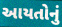
આયતોનું